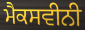
ਮੈਕਸਵੀਨੀ